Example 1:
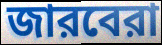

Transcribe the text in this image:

জারবেরা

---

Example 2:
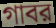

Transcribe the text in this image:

গাবর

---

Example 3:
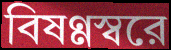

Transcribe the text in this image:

বিষণ্ণস্বরে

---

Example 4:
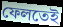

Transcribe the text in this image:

ফেলতেই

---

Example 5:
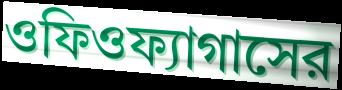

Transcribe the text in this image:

ওফিওফ্যাগাসের